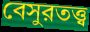
বেসুরতত্ত্ব